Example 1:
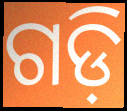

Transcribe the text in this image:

ଗଡ଼ି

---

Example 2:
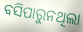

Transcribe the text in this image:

ବସିପାରୁନଥିଲା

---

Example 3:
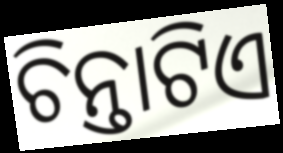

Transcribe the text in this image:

ଚିନ୍ତାଟିଏ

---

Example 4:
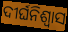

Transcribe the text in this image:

ଦୀର୍ଘନିଶ୍ବାସ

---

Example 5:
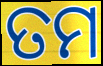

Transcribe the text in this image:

ତମ